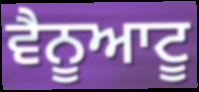
ਵੈਨੂਆਟੂ